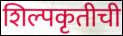
शिल्पकृतीची